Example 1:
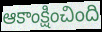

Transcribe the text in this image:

ఆకాంక్షించింది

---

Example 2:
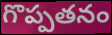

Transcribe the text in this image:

గొప్పతనం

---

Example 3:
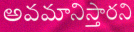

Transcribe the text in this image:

అవమానిస్తారని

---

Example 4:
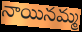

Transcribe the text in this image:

నాయినమ్మ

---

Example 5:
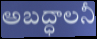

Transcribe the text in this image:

అబద్ధాలనీ